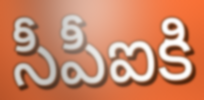
సీపీఐకి